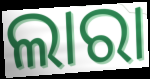
ଲାରା